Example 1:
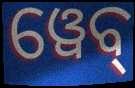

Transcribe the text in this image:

ୱେବ୍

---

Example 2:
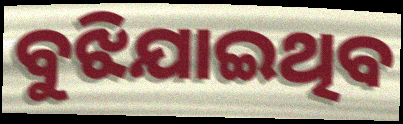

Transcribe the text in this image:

ବୁଝିଯାଇଥିବ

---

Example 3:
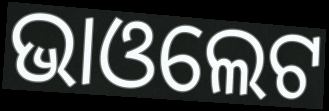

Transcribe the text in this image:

ଭାଓଲେଟ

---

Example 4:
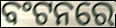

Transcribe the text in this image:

ବଂଟନରେ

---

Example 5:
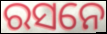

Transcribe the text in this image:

ରସନେ